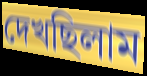
দেখছিলাম